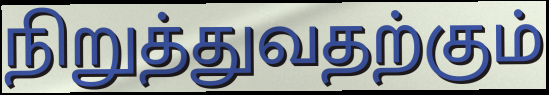
நிறுத்துவதற்கும்